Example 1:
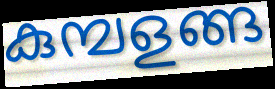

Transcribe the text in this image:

കുമ്പളങ്ങ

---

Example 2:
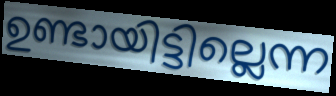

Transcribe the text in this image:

ഉണ്ടായിട്ടില്ലെന്ന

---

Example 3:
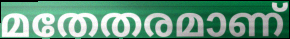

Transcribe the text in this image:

മതേതരമാണ്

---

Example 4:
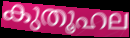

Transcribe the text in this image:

കുതൂഹല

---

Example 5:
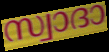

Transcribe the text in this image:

സ്വാദാ